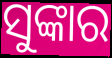
ସୁଙ୍କାର